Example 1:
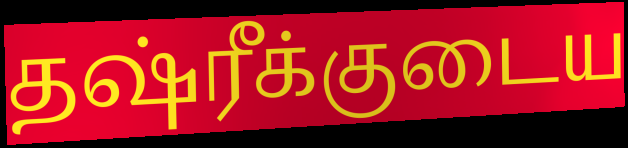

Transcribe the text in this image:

தஷ்ரீக்குடைய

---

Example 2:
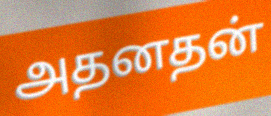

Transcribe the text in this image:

அதனதன்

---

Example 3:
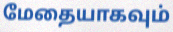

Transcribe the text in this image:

மேதையாகவும்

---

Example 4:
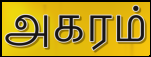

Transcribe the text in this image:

அகரம்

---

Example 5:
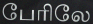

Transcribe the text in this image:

பேரிலே